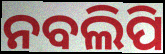
ନବଲିପି